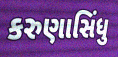
કરુણાસિંધુ